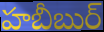
హబీబుర్